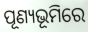
ପୂଣ୍ୟଭୂମିରେ